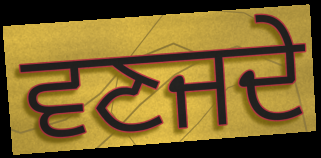
ਵਣਜਦੇ